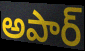
అపార్